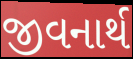
જીવનાર્થ